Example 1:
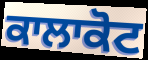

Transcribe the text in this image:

ਕਾਲਾਕੋਟ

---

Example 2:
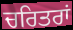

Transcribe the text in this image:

ਚਰਿਤਰਾਂ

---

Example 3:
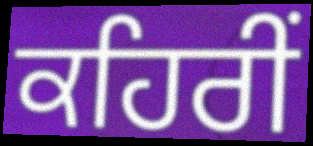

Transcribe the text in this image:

ਕਹਿਰੀਂ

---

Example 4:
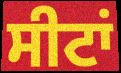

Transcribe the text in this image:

ਸੀਟਾਂ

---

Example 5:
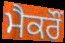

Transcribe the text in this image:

ਮੈਕਰੌਂ